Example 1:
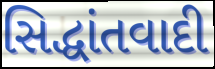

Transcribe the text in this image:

સિદ્ધાંતવાદી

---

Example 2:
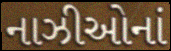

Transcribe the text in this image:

નાઝીઓનાં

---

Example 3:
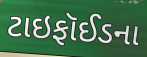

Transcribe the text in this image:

ટાઇફૉઈડના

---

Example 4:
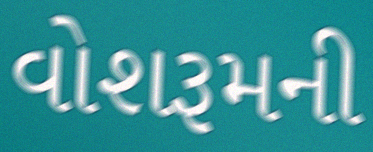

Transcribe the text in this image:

વોશરૂમની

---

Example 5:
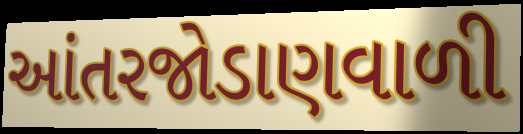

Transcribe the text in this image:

આંતરજોડાણવાળી